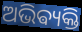
ଅଭିଵ୍ୟକ୍ତି